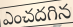
ఎంచదగిన